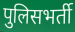
पुलिसभर्ती